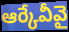
ఆర్కేవీవై